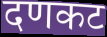
दणकट